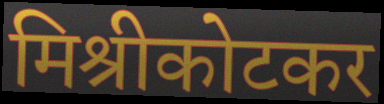
मिश्रीकोटकर